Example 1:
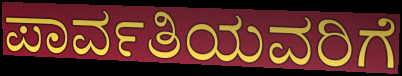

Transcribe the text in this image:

ಪಾರ್ವತಿಯವರಿಗೆ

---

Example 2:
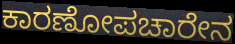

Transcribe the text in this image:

ಕಾರಣೋಪಚಾರೇನ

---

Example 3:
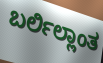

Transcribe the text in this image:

ಬರ್ಲಿಲ್ಲಾಂತ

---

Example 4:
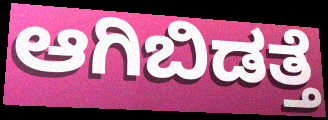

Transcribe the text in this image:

ಆಗಿಬಿಡತ್ತೆ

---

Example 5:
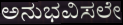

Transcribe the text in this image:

ಅನುಭವಿಸಲೇ